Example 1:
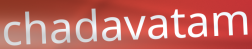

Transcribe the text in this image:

chadavatam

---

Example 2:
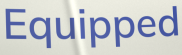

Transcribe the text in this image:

Equipped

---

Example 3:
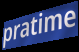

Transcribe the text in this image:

pratime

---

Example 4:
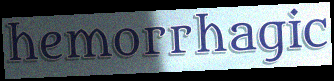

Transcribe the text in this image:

hemorrhagic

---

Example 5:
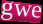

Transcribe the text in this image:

gwe